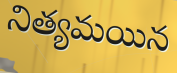
నిత్యమయిన